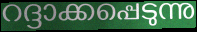
റദ്ദാക്കപ്പെടുന്നു